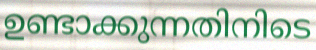
ഉണ്ടാക്കുന്നതിനിടെ